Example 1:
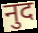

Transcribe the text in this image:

नुद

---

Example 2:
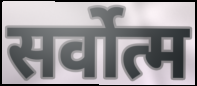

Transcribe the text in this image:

सर्वोत्म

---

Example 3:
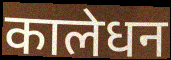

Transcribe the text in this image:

कालेधन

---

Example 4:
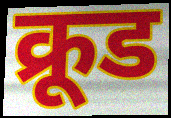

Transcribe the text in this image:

क्रूड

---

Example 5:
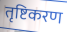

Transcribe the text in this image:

तृष्टिकरण